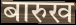
बारुख